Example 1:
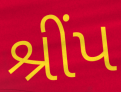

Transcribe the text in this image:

શ્રીંપ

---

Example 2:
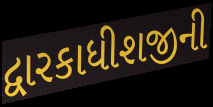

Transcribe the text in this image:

દ્વારકાધીશજીની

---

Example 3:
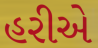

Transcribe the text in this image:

હરીએ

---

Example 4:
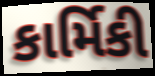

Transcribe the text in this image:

કાર્મિકી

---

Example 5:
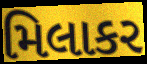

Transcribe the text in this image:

મિલાકર